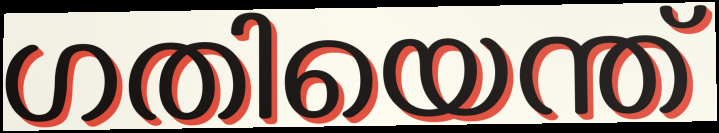
ഗതിയെന്ത്